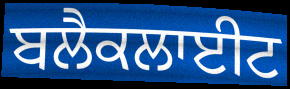
ਬਲੈਕਲਾਈਟ